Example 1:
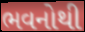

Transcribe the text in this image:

ભવનોથી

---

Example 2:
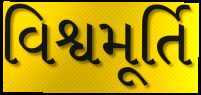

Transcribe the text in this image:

વિશ્વમૂર્તિ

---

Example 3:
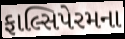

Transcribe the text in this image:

ફાલ્સિપેરમના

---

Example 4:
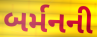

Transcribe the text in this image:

બર્મનની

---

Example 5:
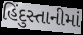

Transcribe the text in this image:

હિંદુસ્તાનીમાં